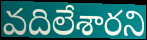
వదిలేశారని